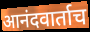
आनंदवार्ताच